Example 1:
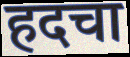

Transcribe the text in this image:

हदचा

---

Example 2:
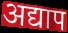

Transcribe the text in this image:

अद्याप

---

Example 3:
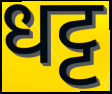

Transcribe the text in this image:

धट्ट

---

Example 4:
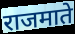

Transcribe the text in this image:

राजमाते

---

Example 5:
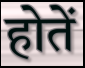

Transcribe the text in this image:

होतें